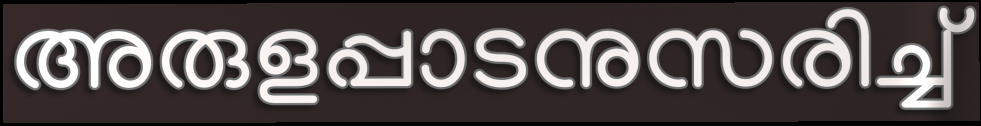
അരുളപ്പാടനുസരിച്ച്